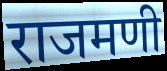
राजमणी